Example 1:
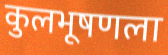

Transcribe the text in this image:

कुलभूषणला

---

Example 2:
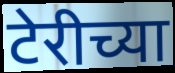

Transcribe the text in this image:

टेरीच्या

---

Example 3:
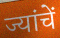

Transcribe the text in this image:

ज्यांचें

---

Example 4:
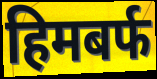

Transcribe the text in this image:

हिमबर्फ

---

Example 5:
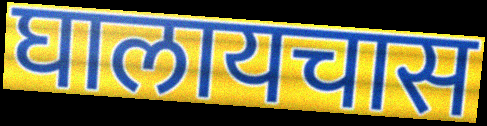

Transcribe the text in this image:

घालायचास